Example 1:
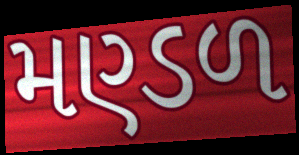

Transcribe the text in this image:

મણ્ડળ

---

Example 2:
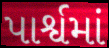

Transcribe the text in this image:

પાર્શ્વમાં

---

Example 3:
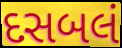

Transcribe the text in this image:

દસબલં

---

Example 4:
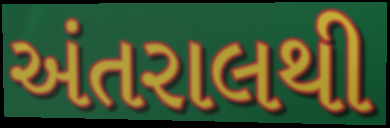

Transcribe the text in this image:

અંતરાલથી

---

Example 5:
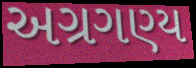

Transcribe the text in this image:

અગ્રગણ્ય